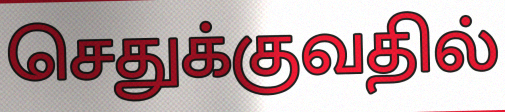
செதுக்குவதில்